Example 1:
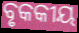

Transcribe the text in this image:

ବୃକକୀୟ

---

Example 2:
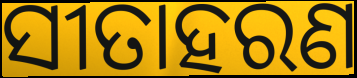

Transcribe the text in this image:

ସୀତାହରଣ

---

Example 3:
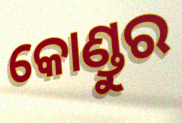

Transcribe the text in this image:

କୋଣ୍ଡୁର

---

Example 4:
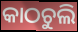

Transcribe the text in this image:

କାଠଚୁଲି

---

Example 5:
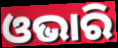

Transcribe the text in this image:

ଓଭାରି